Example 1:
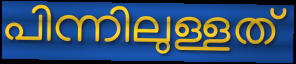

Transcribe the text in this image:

പിന്നിലുള്ളത്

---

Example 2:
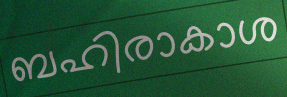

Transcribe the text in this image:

ബഹിരാകാശ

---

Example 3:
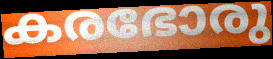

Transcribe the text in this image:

കരഭോരു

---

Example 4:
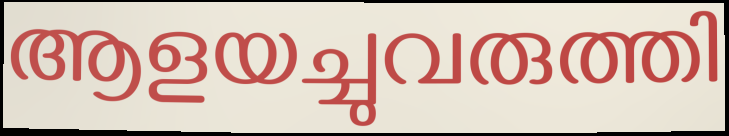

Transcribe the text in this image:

ആളയച്ചുവരുത്തി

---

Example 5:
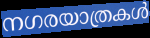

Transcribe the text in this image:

നഗരയാത്രകൾ